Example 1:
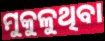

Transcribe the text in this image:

ମୁକୁଳୁଥିବା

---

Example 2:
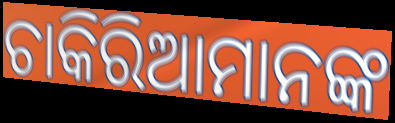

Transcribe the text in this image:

ଚାକିରିଆମାନଙ୍କ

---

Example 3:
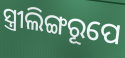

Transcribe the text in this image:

ସ୍ତ୍ରୀଲିଙ୍ଗରୂପେ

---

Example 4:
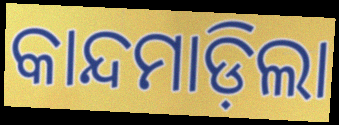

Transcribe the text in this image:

କାନ୍ଦମାଡ଼ିଲା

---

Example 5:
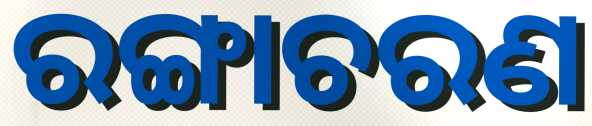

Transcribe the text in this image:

ରଙ୍ଗାଚରଣ